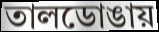
তালডোঙায়